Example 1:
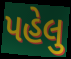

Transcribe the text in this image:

પહેલુ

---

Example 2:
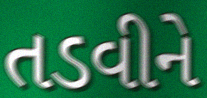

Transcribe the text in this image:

તડવીને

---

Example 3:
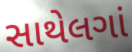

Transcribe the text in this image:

સાથેલગાં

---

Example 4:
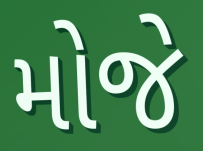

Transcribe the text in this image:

મોજે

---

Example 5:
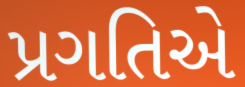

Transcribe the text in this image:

પ્રગતિએ